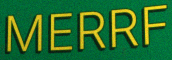
MERRF